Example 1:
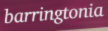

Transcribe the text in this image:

barringtonia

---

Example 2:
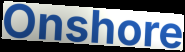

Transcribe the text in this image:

Onshore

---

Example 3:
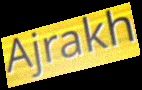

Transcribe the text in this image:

Ajrakh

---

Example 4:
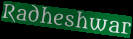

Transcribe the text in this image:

Radheshwar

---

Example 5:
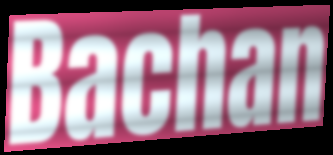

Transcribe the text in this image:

Bachan